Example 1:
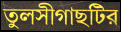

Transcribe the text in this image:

তুলসীগাছটির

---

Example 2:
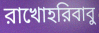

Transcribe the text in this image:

রাখোহরিবাবু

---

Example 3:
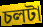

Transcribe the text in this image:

চলটা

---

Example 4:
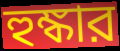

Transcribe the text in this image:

হুঙ্কার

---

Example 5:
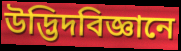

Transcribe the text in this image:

উদ্ভিদবিজ্ঞানে